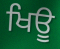
ਖਿਊ